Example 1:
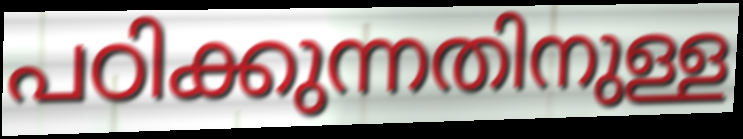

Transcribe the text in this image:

പഠിക്കുന്നതിനുള്ള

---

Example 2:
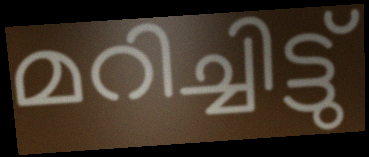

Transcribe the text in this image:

മറിച്ചിട്ടു്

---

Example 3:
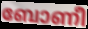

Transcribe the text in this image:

ബോണീ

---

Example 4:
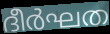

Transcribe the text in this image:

ദീർഘത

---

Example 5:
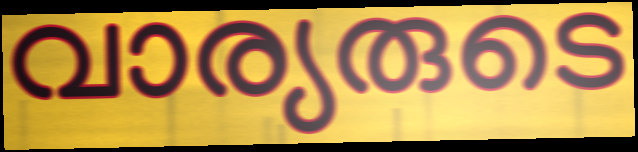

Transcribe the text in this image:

വാര്യരുടെ